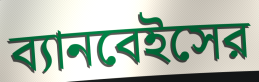
ব্যানবেইসের